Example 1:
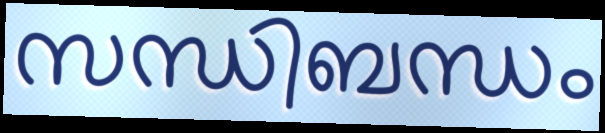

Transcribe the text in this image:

സന്ധിബന്ധം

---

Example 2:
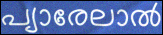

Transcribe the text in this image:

പ്യാരേലാൽ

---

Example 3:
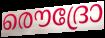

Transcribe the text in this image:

രൌദ്രോ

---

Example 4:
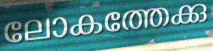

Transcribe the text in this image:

ലോകത്തേക്കു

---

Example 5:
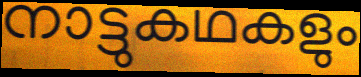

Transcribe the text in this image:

നാട്ടുകഥകളും